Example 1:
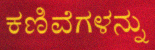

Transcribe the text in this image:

ಕಣಿವೆಗಳನ್ನು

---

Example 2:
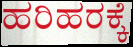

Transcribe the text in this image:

ಹರಿಹರಕ್ಕೆ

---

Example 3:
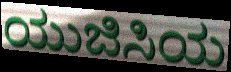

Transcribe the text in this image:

ಯುಜಿಸಿಯ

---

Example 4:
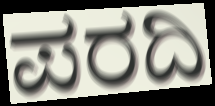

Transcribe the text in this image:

ಪರದಿ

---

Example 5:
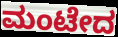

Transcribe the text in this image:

ಮಂಟೇದ